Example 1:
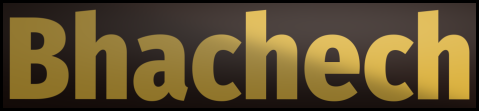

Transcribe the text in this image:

Bhachech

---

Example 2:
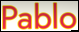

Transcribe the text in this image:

Pablo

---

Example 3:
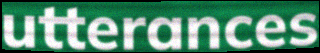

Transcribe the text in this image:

utterances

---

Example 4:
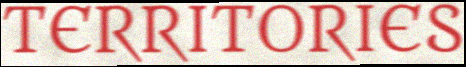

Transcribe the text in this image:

TERRITORIES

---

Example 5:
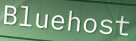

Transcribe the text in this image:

Bluehost